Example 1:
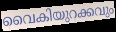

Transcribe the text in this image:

വൈകിയുറക്കവും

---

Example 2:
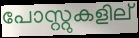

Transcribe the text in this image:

പോസ്റ്റുകളില്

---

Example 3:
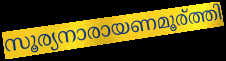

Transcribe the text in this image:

സൂര്യനാരായണമൂര്ത്തി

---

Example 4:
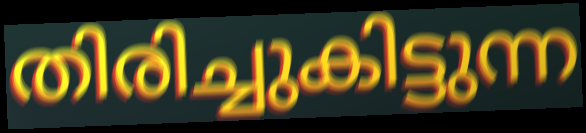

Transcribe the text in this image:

തിരിച്ചുകിട്ടുന്ന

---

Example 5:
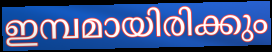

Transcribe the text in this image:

ഇമ്പമായിരിക്കും